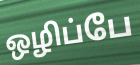
ஒழிப்பே